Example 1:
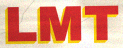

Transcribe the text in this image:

LMT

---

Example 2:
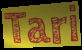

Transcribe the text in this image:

Tari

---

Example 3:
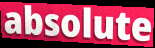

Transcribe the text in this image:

absolute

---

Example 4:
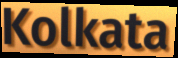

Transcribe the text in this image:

Kolkata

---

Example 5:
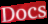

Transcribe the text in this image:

Docs